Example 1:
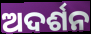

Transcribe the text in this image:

ଅଦର୍ଶନ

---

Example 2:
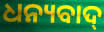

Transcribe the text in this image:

ଧନ୍ୟବାଦ୍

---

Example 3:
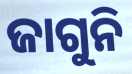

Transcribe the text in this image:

ଜାଗୁନି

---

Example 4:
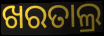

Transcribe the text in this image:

ଖରତାଲ୍ର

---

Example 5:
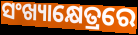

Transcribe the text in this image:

ସଂଖ୍ୟାକ୍ଷେତ୍ରରେ